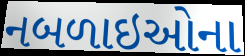
નબળાઇઓના